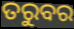
ତରୁବର